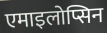
एमाइलोप्सिन